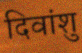
दिवांशु